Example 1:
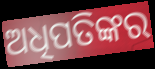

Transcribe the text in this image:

ଅଧିପତିଙ୍କର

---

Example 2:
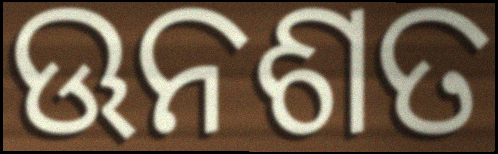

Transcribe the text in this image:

ଊନଶତ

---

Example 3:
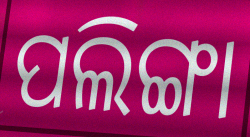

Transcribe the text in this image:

ପଲିଙ୍ଗା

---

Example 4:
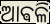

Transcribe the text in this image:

ଆଵଳି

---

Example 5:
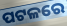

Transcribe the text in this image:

ପଟଳରେ